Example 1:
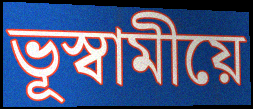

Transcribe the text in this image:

ভূস্বামীয়ে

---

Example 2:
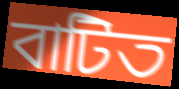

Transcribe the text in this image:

বাটিত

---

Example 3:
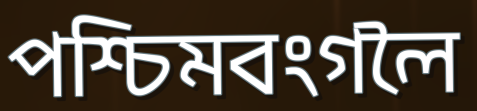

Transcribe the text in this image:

পশ্চিমবংগলৈ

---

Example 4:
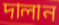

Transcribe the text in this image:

দালান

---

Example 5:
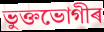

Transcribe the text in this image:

ভুক্তভোগীৰ